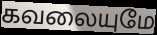
கவலையுமே